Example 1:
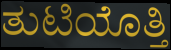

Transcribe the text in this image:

ತುಟಿಯೊತ್ತಿ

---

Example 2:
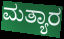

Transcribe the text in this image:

ಮತ್ಯಾರ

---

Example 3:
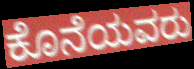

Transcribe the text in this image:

ಕೊನೆಯವರು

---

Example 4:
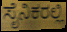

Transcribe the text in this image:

ಸೈನಿಕರಲ್ಲಿ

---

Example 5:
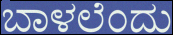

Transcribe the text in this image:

ಬಾಳಲೆಂದು